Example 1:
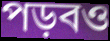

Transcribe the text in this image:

পড়বও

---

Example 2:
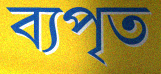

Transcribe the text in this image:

ব্যপৃত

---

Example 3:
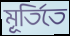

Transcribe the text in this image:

মূর্তিতে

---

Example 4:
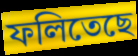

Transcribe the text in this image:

ফলিতেছে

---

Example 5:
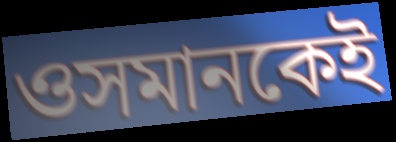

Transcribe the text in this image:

ওসমানকেই